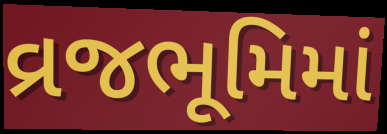
વ્રજભૂમિમાં